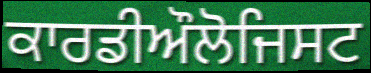
ਕਾਰਡੀਔਲੋਜਿਸਟ